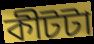
কীটটা